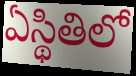
ఏస్థితిలో